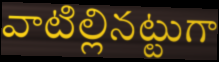
వాటిల్లినట్టుగా